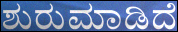
ಶುರುಮಾಡಿದೆ